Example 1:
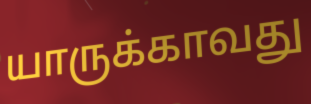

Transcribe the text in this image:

யாருக்காவது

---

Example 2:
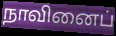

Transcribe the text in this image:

நாவினைப்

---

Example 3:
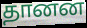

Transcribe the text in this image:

தானன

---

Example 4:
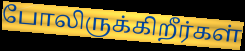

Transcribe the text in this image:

போலிருக்கிறீர்கள்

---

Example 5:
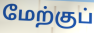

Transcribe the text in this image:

மேற்குப்